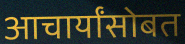
आचार्यांसोबत